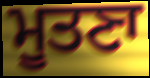
ਮੂਤਣਾ